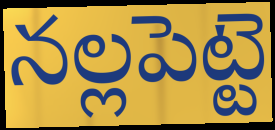
నల్లపెట్టె